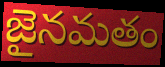
జైనమతం